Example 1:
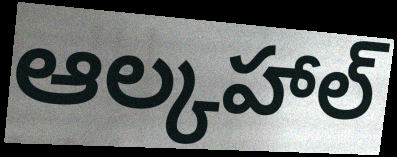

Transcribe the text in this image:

ఆల్కహాల్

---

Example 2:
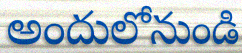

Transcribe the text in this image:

అందులోనుండి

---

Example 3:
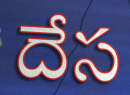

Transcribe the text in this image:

దేస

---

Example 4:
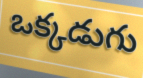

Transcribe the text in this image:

ఒక్కడుగు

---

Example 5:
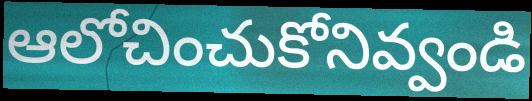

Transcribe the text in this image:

ఆలోచించుకోనివ్వండి